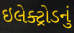
ઇલેક્ટ્રોડનું